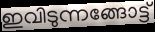
ഇവിടുന്നങ്ങോട്ട്